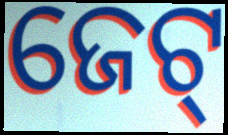
ଜେଟ୍